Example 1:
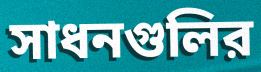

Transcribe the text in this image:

সাধনগুলির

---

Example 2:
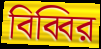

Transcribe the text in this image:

বিব্বির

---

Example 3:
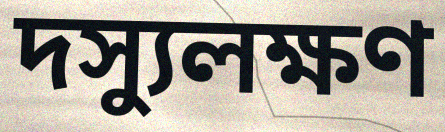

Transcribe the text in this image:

দস্যুলক্ষণ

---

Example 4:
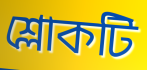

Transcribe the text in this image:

শ্লোকটি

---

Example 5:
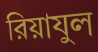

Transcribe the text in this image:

রিয়াযুল